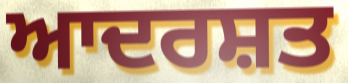
ਆਦਰਸ਼ਤ